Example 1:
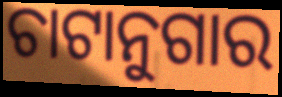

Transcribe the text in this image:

ଚାଟାନୁଗାର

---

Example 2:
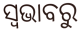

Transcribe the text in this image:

ସ୍ଵଭାବରୁ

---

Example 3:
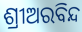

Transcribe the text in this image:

ଶ୍ରୀଅରବିନ୍ଦ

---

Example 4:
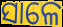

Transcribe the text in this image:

ସାଳେ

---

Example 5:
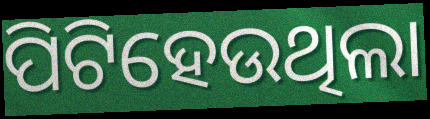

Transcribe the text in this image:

ପିଟିହେଉଥିଲା